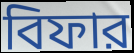
বিফার